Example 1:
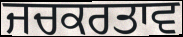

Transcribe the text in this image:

ਜਚਕਰਤਾਵ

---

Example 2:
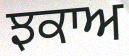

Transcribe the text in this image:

ਝਕਾਅ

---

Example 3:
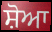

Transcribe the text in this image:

ਸ਼ੋਆ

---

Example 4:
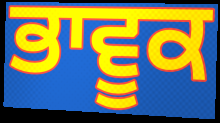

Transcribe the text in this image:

ਭਾਵੂਕ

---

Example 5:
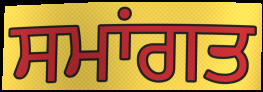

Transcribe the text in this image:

ਸਮਾਂਗਤ